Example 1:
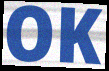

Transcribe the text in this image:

OK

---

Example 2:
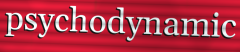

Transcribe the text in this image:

psychodynamic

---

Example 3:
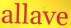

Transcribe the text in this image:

allave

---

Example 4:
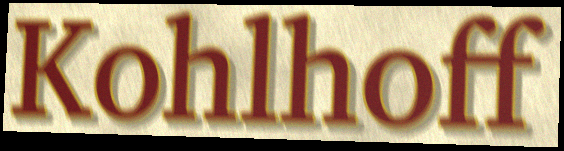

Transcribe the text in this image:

Kohlhoff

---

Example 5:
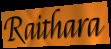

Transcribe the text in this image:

Raithara